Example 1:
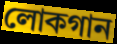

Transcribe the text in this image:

লোকগান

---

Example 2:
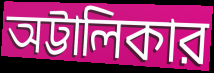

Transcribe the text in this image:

অট্টালিকার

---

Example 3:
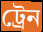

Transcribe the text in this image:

ট্রেন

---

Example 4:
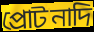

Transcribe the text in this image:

প্রোটনাদি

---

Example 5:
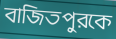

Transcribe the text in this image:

বাজিতপুরকে